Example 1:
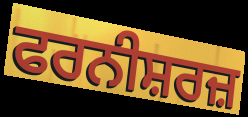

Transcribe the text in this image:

ਫਰਨੀਸ਼ਰਜ਼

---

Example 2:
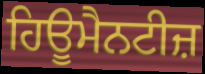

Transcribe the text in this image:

ਹਿਊਮੈਨਟੀਜ਼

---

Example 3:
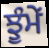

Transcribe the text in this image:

ਝੂੰਮੇਂ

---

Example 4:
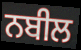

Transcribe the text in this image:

ਨਬੀਲ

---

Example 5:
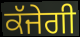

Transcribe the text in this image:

ਕੱਜੇਗੀ